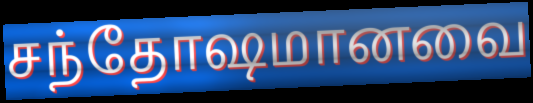
சந்தோஷமானவை